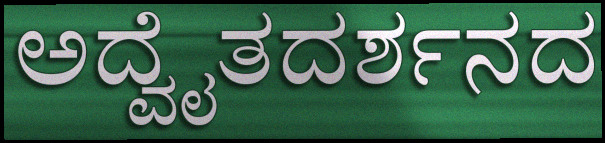
ಅದ್ವೈತದರ್ಶನದ